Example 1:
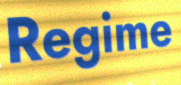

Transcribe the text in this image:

Regime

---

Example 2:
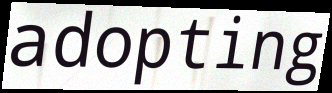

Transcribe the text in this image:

adopting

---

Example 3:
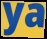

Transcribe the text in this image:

ya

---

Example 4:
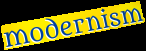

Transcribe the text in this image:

modernism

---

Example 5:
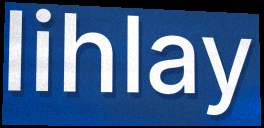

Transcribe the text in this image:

lihlay